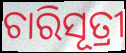
ଚାରିସୂତ୍ରୀ